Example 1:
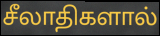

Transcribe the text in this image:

சீலாதிகளால்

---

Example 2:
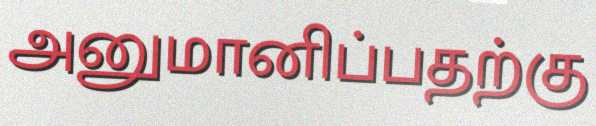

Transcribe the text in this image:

அனுமானிப்பதற்கு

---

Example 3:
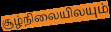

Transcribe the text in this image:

சூழ்நிலையிலயும்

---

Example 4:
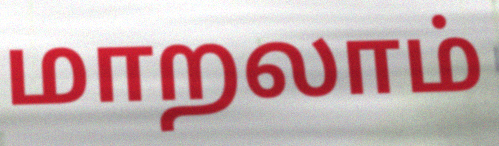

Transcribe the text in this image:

மாறலாம்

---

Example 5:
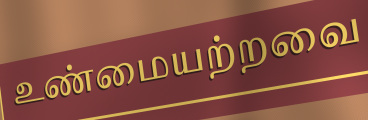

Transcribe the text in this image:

உண்மையற்றவை